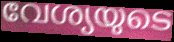
വേശ്യയുടെ